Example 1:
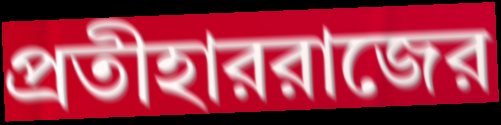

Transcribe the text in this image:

প্রতীহাররাজের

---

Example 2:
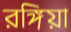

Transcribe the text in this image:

রঙ্গিয়া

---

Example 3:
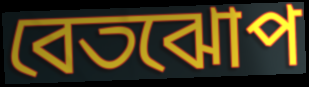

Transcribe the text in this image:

বেতঝোপ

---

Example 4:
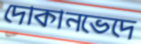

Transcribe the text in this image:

দোকানভেদে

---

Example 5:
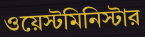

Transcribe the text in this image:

ওয়েস্টমিনিস্টার